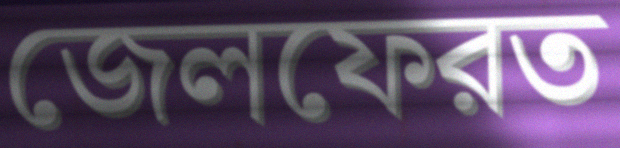
জেলফেরত